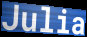
Julia